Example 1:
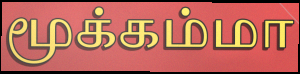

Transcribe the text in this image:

மூக்கம்மா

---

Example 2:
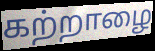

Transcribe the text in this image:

கற்றாழை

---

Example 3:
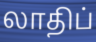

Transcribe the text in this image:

லாதிப்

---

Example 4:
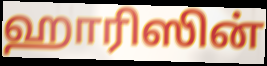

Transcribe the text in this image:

ஹாரிஸின்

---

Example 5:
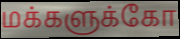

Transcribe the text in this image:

மக்களுக்கோ